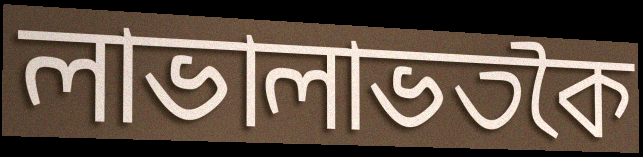
লাভালাভতকৈ